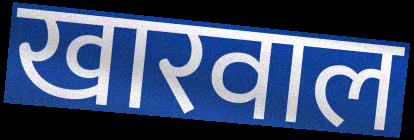
खारवाल